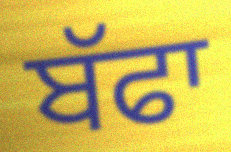
ਬੱਫਾ